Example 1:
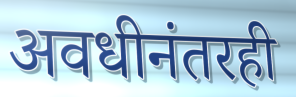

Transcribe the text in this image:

अवधीनंतरही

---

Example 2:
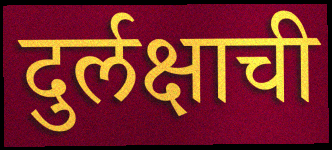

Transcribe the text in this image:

दुर्लक्षाची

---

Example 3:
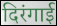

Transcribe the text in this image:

दिरंगाई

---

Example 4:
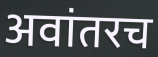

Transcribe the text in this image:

अवांतरच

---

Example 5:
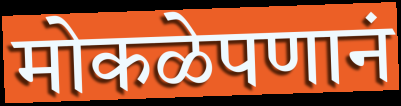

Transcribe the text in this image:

मोकळेपणानं